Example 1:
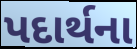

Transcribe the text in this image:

પદાર્થના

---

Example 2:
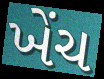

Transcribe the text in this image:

ખેંચ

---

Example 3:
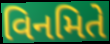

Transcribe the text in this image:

વિનમિતે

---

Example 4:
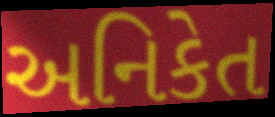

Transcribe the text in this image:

અનિકેત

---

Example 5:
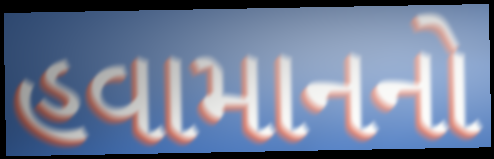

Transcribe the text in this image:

હવામાનનો